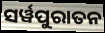
ସର୍ୱପୁରାତନ